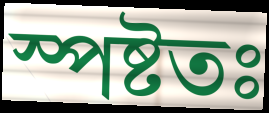
স্পষ্টতঃ